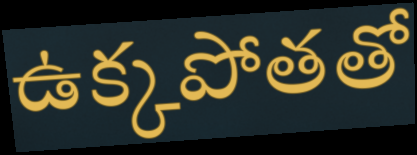
ఉక్కపోతతో